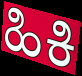
ಹಿಕಿ